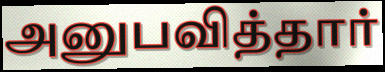
அனுபவித்தார்